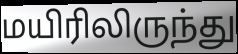
மயிரிலிருந்து